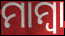
ମାମ୍ଵା